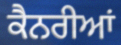
ਕੈਨਰੀਆਂ